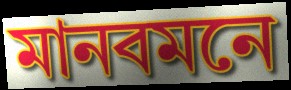
মানবমনে